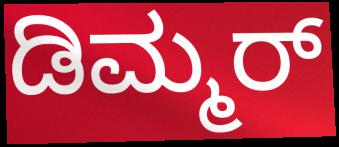
ಡಿಮ್ಮರ್